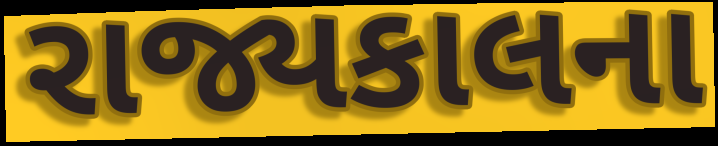
રાજ્યકાલના